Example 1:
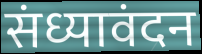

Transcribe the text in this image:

संध्यावंदन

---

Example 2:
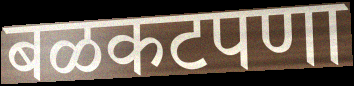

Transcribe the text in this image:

बळकटपणा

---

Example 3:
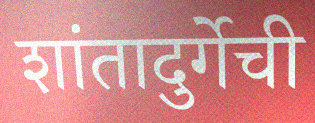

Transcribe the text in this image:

शांतादुर्गेची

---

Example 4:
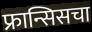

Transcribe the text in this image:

फ्रान्सिसचा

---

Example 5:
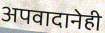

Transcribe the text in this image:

अपवादानेही